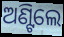
ଅଣ୍ଟିଲେ